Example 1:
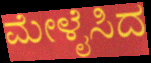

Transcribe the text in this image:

ಮೇಳೈಸಿದ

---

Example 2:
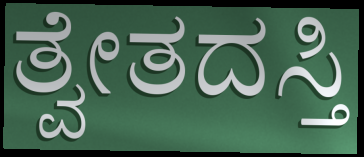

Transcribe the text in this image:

ತ್ವೇತದಸ್ತಿ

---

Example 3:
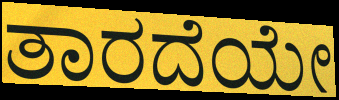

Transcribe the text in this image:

ತಾರದೆಯೇ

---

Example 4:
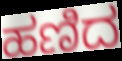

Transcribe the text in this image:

ಹಣಿದ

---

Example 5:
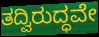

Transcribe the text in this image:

ತದ್ವಿರುದ್ಧವೇ